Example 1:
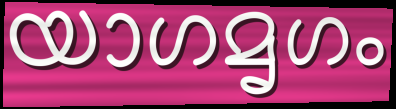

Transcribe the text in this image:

യാഗമൃഗം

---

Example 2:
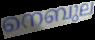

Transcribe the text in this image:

നെബുല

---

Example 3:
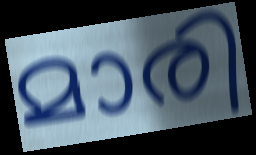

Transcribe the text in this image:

മാരി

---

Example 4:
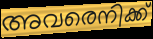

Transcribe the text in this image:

അവരെനിക്ക്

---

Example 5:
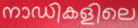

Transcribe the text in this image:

നാഡികളിലെ